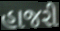
હાજરી